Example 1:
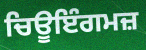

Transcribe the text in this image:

ਚਿਊਇੰਗਮਜ਼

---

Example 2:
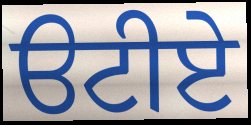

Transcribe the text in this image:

ੳਟੀਏ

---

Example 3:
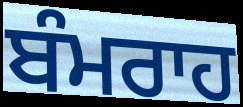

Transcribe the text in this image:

ਬੰਮਰਾਹ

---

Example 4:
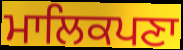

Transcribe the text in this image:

ਮਾਲਿਕਪਣਾ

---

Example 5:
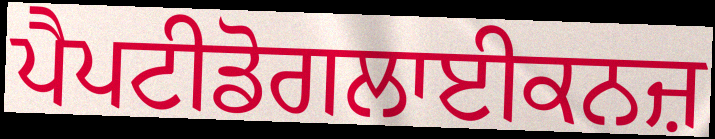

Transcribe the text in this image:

ਪੈਪਟੀਡੋਗਲਾਈਕਨਜ਼